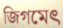
জিগমেৎ